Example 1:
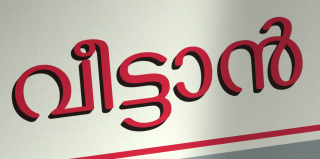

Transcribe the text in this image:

വീട്ടാൻ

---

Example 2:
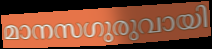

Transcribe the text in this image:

മാനസഗുരുവായി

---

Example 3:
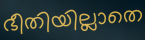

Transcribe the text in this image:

ഭീതിയില്ലാതെ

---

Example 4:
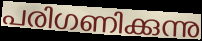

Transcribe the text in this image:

പരിഗണിക്കുന്നു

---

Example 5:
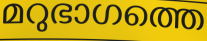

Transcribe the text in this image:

മറുഭാഗത്തെ